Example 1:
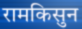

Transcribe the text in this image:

रामकिसुन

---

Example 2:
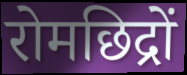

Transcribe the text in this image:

रोमछिद्रों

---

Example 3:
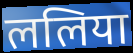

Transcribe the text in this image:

ललिया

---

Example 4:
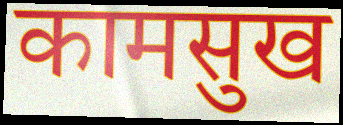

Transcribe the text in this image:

कामसुख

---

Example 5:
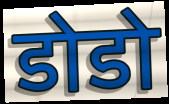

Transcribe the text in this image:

डोडो